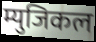
म्युजिकल